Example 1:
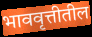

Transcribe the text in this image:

भाववृत्तीतील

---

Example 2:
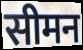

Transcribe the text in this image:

सीमन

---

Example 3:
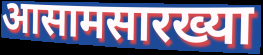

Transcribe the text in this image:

आसामसारख्या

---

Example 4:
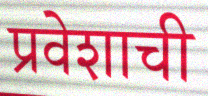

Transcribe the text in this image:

प्रवेशाची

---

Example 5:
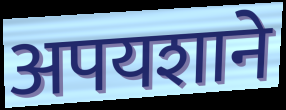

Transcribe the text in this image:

अपयशाने